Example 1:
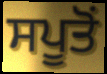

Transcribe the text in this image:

ਸਪੂਤੋਂ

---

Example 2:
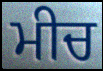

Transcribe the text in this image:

ਮੀਚ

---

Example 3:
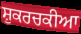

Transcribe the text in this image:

ਸ਼ੁਕਰਚਕੀਆ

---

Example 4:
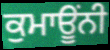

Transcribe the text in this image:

ਕੁਮਾਊਂਨੀ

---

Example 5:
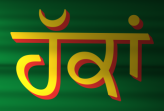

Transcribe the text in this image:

ਹੱਕਾਂ